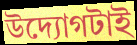
উদ্যোগটাই